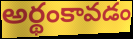
అర్థంకావడం